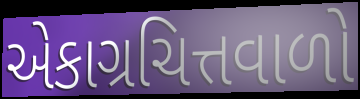
એકાગ્રચિત્તવાળો